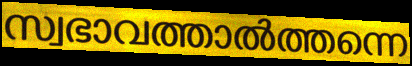
സ്വഭാവത്താൽത്തന്നെ